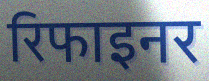
रिफाइनर